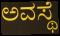
ಅವಸ್ಥೆ